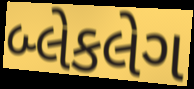
બ્લેકલેગ